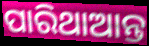
ପାରିଥାଆନ୍ତ